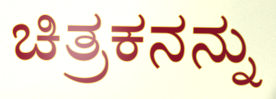
ಚಿತ್ರಕನನ್ನು